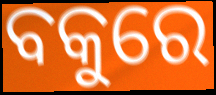
ବକୁରେ